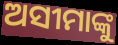
ଅସୀମାଙ୍କୁ